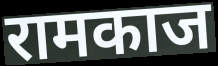
रामकाज